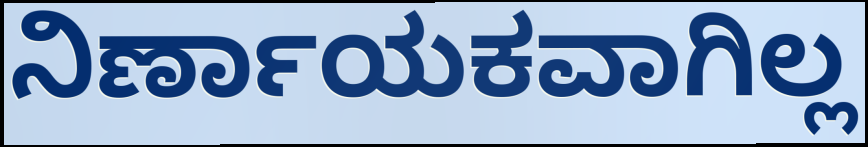
ನಿರ್ಣಾಯಕವಾಗಿಲ್ಲ